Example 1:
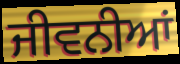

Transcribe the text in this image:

ਜੀਵਨੀਆਂ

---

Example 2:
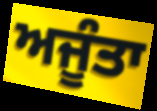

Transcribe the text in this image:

ਅਜੂੰਤਾ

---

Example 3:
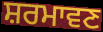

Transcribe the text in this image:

ਸ਼ਰਮਾਵਣ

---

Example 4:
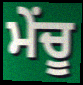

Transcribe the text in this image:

ਮੇਂਚੂ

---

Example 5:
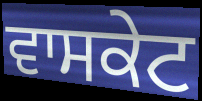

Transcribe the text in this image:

ਵਾਸਕੇਟ